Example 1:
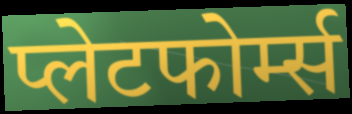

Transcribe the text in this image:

प्लेटफोर्म्स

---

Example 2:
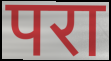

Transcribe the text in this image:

परा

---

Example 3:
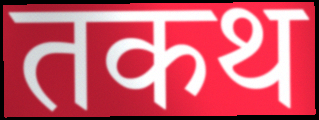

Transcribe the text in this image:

तकथ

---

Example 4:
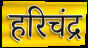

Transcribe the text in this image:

हरिचंद्र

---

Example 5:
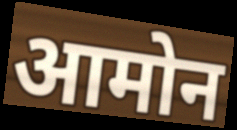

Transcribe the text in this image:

आमोन